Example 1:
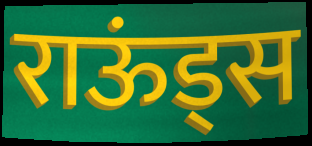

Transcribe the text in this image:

राऊंड्स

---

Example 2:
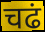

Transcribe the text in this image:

चढं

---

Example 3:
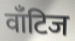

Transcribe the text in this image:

वाँटिज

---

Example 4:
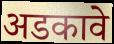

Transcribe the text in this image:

अडकावे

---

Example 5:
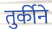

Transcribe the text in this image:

तुर्कीने